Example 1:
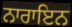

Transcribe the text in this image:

ਨਾਰਾਇਨ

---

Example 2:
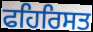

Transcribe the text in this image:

ਫਹਿਰਿਸਤ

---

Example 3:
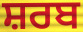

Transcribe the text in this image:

ਸ਼ਰਬ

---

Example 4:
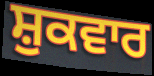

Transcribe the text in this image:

ਸ਼ੁਕਵਾਰ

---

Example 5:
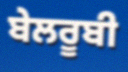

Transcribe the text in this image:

ਬੇਲਰੂਬੀ